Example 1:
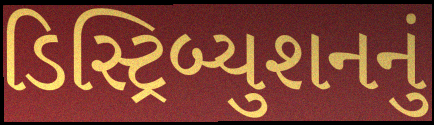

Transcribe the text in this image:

ડિસ્ટ્રિબ્યુશનનું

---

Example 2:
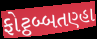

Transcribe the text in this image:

ફોટ્ઠબ્બતણ્હા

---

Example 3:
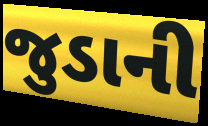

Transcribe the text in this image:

જુડાની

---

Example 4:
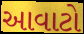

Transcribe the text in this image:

આવાટો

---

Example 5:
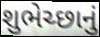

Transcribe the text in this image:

શુભેચ્છાનું